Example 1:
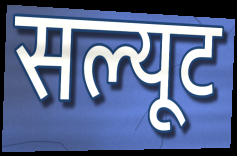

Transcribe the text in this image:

सल्यूट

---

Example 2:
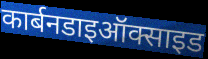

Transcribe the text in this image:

कार्बनडाइऑक्साइड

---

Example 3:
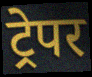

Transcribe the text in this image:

ट्रेपर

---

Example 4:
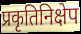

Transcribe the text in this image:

प्रकृतिनिक्षेप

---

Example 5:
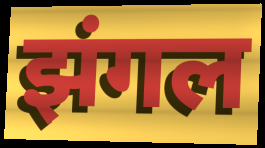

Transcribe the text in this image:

झंगल